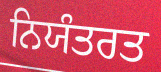
ਨਿਯੰਤਰਤ